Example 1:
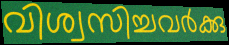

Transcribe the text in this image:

വിശ്വസിച്ചവർക്കു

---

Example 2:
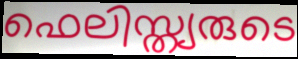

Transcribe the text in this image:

ഫെലിസ്ത്യരുടെ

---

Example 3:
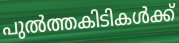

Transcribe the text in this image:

പുൽത്തകിടികൾക്ക്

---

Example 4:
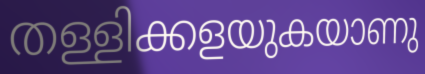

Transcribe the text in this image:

തള്ളിക്കളയുകയാണു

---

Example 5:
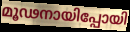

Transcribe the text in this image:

മൂഢനായിപ്പോയി